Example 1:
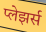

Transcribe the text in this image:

प्लेझर्स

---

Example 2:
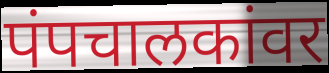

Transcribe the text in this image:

पंपचालकांवर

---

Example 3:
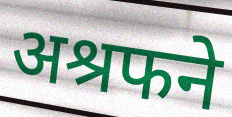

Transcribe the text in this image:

अश्रफने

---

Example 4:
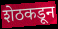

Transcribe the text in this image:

शेठकडून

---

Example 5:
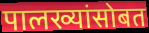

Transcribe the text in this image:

पालख्यांसोबत